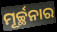
ମୂର୍ଚ୍ଛନାର